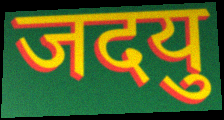
जदयु